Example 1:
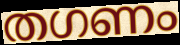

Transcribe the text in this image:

തഗണം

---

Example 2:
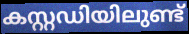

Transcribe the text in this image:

കസ്റ്റഡിയിലുണ്ട്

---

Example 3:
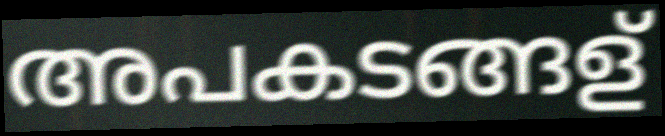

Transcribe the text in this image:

അപകടങ്ങള്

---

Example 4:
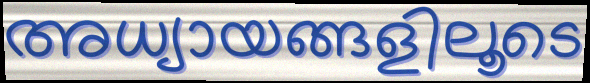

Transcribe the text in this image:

അധ്യായങ്ങളിലൂടെ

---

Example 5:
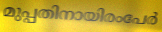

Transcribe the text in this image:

മുപ്പതിനായിരംപേർ